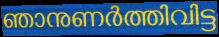
ഞാനുണർത്തിവിട്ട